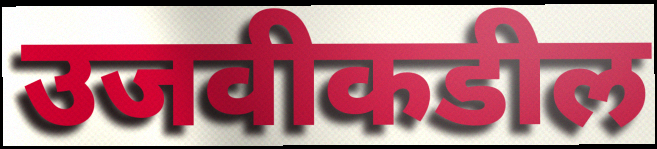
उजवीकडील